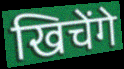
खिचेंगे